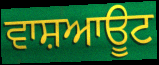
ਵਾਸ਼ਆਊਟ